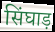
सिंघाड़